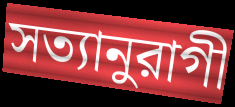
সত্যানুরাগী